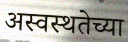
अस्वस्थतेच्या